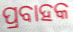
ପ୍ରବାହକ